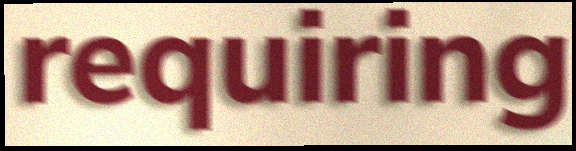
requiring